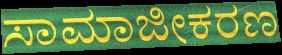
ಸಾಮಾಜೀಕರಣ